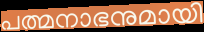
പത്മനാഭനുമായി